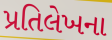
પ્રતિલેખના